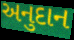
અનુદાન